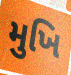
મુખિ